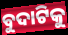
ବୁଦାଟିକୁ